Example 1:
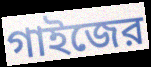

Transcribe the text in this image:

গাইজের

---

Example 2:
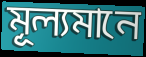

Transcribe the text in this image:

মূল্যমানে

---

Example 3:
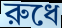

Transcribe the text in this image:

রুধে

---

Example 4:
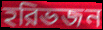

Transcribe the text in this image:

হরিভজন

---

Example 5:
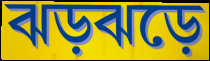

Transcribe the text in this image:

ঝড়ঝড়ে